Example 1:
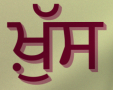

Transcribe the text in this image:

ਖ਼ੁੱਸ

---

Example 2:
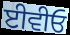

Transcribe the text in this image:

ਈਵੀਓ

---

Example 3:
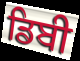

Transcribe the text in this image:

ਡਿਬੀ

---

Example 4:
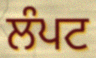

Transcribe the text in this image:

ਲੰਪਟ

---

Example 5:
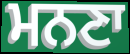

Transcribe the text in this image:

ਮਨਣਾ